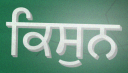
ਕਿਸੁਨ